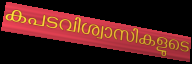
കപടവിശ്വാസികളുടെ